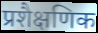
प्रशैक्षणिक